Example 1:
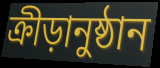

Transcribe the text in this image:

ক্ৰীড়ানুষ্ঠান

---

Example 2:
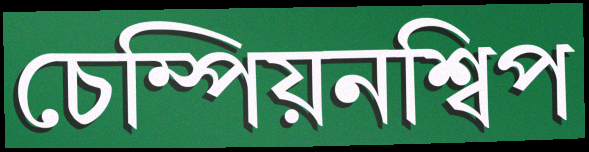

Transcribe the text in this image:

চেম্পিয়নশ্বিপ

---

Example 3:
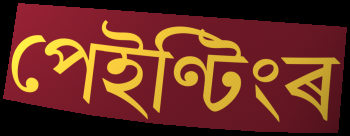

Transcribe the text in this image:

পেইণ্টিংৰ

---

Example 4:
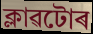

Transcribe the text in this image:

ক্লাৱটোৰ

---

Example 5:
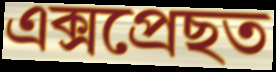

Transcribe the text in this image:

এক্সপ্ৰেছত